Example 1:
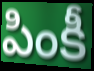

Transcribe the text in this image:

పింకీ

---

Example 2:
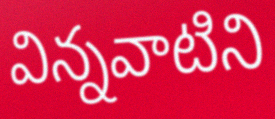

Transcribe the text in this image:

విన్నవాటిని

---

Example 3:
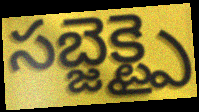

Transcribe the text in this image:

సబ్జెక్ట్పై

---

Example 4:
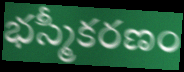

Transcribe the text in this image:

భస్మీకరణం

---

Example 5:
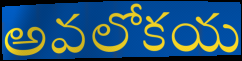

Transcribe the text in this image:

అవలోకయ